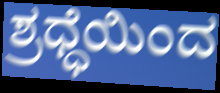
ಶ್ರಧ್ಧೆಯಿಂದ